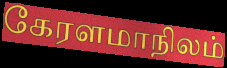
கேரளமாநிலம்